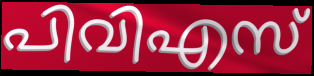
പിവിഎസ്